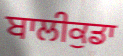
ਬਾਲੀਕੁਡਾ